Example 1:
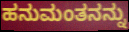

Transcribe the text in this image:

ಹನುಮಂತನನ್ನು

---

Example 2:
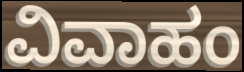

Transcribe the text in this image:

ವಿವಾಹಂ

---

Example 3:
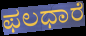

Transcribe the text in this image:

ಫಲಧಾರೆ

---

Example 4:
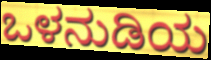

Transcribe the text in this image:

ಒಳನುಡಿಯ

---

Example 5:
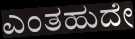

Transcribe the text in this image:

ಎಂತಹುದೇ